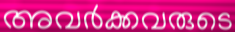
അവർക്കവരുടെ